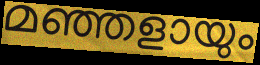
മഞ്ഞളായും